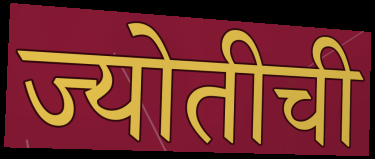
ज्योतीची